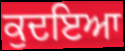
ਕੁਦਇਆ